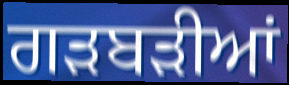
ਗੜਬੜੀਆਂ